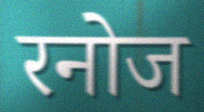
रनोज